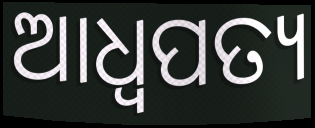
ଆଧ୍ଵପତ୍ୟ